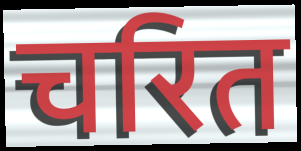
चरित